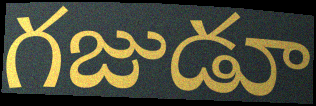
గజుడూ